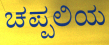
ಚಪ್ಪಲಿಯ